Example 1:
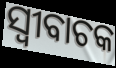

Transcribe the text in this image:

ସ୍ବୀବାଚକ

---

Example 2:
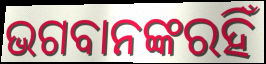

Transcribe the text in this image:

ଭଗବାନଙ୍କରହିଁ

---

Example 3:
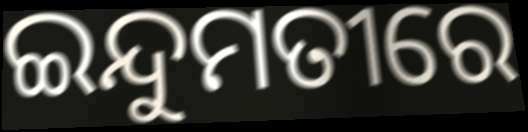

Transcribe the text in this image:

ଇନ୍ଦୁମତୀରେ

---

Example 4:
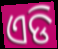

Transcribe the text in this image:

ଏଡି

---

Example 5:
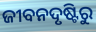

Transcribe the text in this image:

ଜୀବନଦୃଷ୍ଟିରୁ